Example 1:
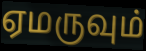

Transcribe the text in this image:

ஏமருவும்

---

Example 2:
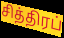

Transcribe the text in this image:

சித்திரப்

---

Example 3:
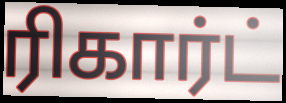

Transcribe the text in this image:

ரிகார்ட்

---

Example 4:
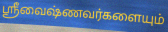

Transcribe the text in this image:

ஸ்ரீவைஷ்ணவர்களையும்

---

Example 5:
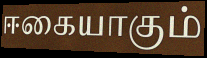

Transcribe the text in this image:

ஈகையாகும்